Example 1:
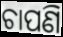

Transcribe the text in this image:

ଚାପଣି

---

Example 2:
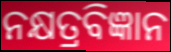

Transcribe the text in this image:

ନକ୍ଷତ୍ରବିଜ୍ଞାନ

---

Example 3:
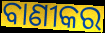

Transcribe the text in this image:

ବାଣୀକର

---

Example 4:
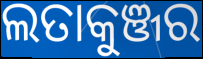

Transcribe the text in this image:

ଲତାକୁଞ୍ଜର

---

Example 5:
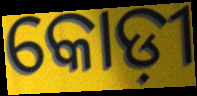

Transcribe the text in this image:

କୋଡ଼ୀ